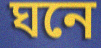
ঘনে